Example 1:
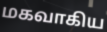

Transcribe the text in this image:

மகவாகிய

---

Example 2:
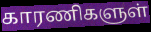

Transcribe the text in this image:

காரணிகளுள்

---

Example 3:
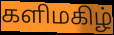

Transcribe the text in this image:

களிமகிழ்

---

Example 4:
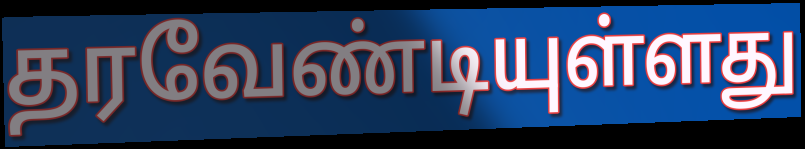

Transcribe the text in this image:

தரவேண்டியுள்ளது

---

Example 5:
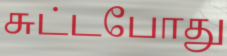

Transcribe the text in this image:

சுட்டபோது